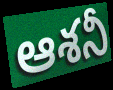
ఆశనీ